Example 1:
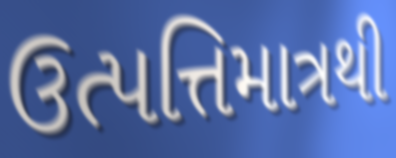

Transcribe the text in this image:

ઉત્પત્તિમાત્રથી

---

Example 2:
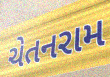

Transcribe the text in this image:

ચેતનરામ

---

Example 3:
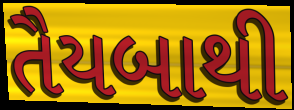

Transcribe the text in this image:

તૈયબાથી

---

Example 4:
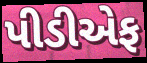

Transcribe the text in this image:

પીડીએફ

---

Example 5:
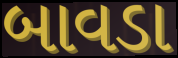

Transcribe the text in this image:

બાવડા